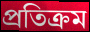
প্ৰতিক্ৰম